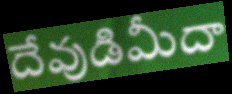
దేవుడిమీదా